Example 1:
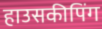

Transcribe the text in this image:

हाउसकीपिंग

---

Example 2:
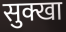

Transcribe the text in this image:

सुक्खा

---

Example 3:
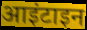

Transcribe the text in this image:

आइंटाइन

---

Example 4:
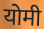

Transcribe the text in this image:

योमी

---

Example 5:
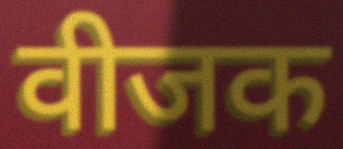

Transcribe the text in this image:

वीजक